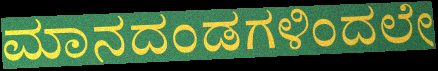
ಮಾನದಂಡಗಳಿಂದಲೇ